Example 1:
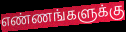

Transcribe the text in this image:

எண்ணங்களுக்கு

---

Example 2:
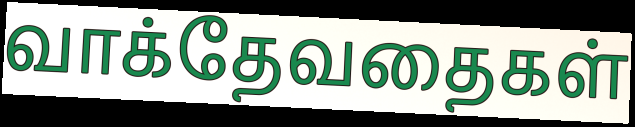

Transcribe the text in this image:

வாக்தேவதைகள்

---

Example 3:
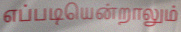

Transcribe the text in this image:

எப்படியென்றாலும்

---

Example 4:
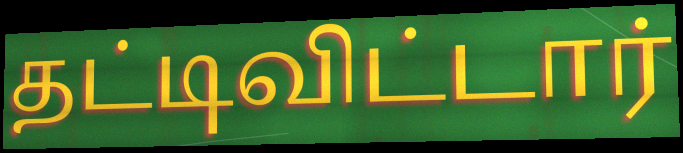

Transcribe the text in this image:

தட்டிவிட்டார்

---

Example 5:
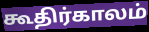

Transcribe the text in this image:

கூதிர்காலம்